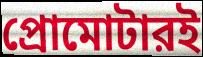
প্রোমোটারই